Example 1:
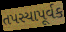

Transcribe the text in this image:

તપસ્યાપૂર્વક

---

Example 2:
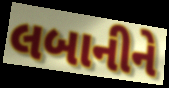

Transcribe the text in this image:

લબાનીને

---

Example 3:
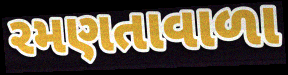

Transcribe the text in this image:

રમણતાવાળા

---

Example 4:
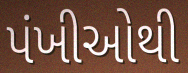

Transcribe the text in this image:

પંખીઓથી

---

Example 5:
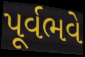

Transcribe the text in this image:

પૂર્વભવે